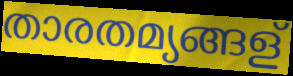
താരതമ്യങ്ങള്